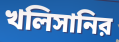
খলিসানির